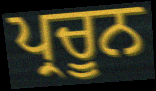
ਪ੍ਰਚੂਨ